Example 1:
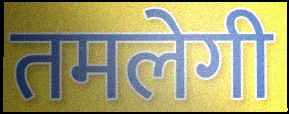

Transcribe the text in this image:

तमलेगी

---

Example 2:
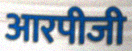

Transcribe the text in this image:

आरपीजी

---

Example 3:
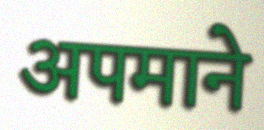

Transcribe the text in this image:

अपमाने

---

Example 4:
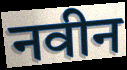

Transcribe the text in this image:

नवीन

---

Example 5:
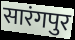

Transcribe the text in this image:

सारंगपुर